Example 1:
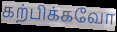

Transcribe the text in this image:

கற்பிக்கவோ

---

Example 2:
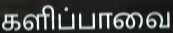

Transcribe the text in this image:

களிப்பாவை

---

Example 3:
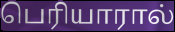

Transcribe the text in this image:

பெரியாரால்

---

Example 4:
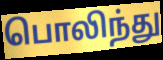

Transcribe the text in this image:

பொலிந்து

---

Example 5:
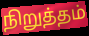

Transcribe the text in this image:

நிறுத்தம்